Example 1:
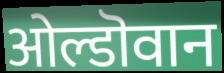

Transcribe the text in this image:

ओल्डॊवान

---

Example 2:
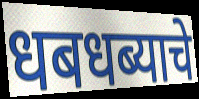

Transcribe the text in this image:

धबधब्याचे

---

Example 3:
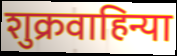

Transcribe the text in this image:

शुक्रवाहिन्या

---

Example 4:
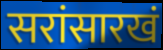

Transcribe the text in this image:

सरांसारखं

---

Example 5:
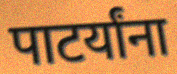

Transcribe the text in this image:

पाटर्यांना